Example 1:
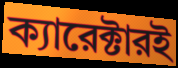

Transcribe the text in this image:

ক্যারেক্টারই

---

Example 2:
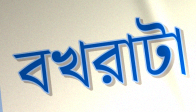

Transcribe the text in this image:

বখরাটা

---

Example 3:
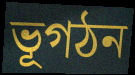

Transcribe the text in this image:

ভূগঠন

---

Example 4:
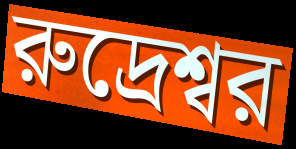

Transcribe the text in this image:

রুদ্রেশ্বর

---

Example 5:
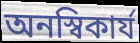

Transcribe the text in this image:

অনস্বিকার্য